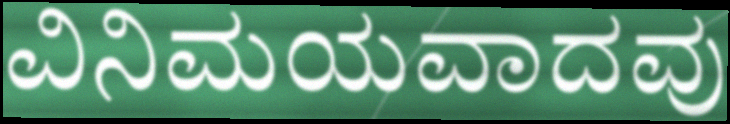
ವಿನಿಮಯವಾದವು